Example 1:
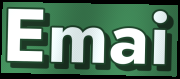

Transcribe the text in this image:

Emai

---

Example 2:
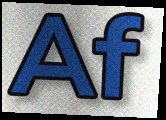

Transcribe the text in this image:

Af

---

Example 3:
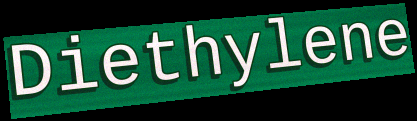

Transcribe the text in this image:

Diethylene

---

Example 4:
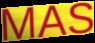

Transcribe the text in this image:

MAS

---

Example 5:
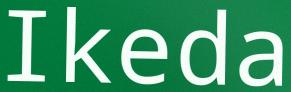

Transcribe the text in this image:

Ikeda